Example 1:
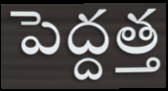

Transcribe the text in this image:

పెద్దత్త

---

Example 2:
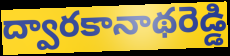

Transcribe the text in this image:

ద్వారకానాథరెడ్డి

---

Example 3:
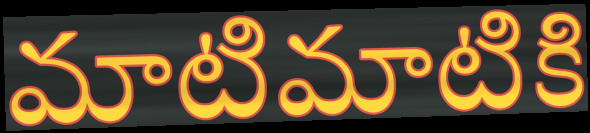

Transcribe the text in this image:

మాటిమాటికి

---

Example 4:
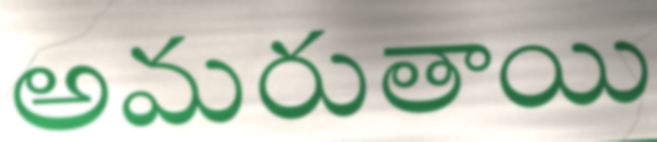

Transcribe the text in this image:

అమరుతాయి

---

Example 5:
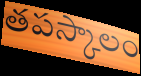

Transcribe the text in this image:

తపస్కాలం